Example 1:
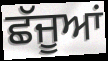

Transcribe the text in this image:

ਛੱਜੂਆਂ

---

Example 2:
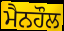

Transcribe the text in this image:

ਮੈਨਹੌਲ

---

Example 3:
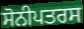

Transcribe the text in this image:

ਸੋਨੀਪਤਰਸ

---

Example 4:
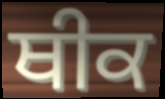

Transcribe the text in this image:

ਥੀਕ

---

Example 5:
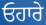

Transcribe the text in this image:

ਓਹਾਰੇ